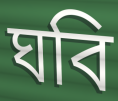
ঘবি